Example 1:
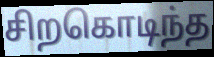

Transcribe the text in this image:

சிறகொடிந்த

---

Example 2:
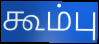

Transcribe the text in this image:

கூம்பு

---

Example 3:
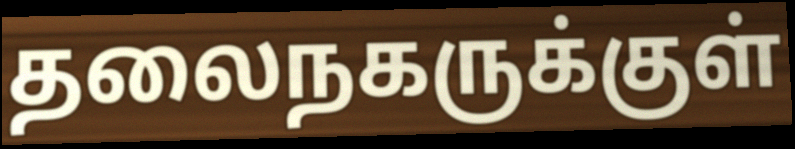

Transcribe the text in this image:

தலைநகருக்குள்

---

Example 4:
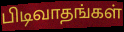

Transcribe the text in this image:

பிடிவாதங்கள்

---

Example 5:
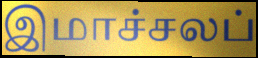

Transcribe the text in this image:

இமாச்சலப்